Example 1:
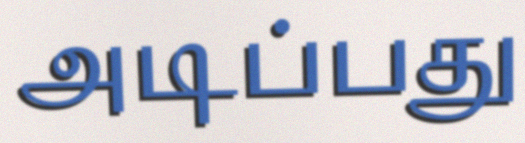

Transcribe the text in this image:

அடிப்பது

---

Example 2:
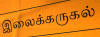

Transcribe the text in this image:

இலைக்கருகல்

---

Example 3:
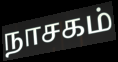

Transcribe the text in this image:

நாசகம்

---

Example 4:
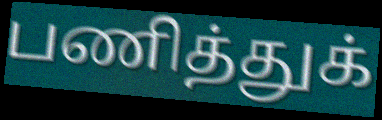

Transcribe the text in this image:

பணித்துக்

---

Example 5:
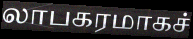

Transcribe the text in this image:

லாபகரமாகச்